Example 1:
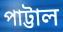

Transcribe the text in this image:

পাট্টাল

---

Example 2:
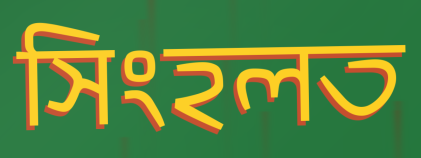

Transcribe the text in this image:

সিংহলত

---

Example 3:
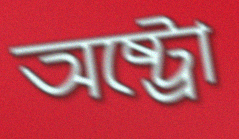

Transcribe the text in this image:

অষ্ট্ৰো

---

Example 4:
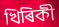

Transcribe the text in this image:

খিৰিকী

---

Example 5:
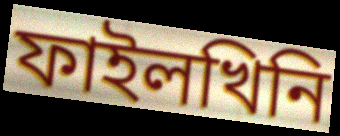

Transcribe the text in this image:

ফাইলখিনি